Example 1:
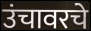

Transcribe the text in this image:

उंचावरचे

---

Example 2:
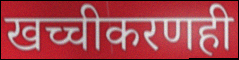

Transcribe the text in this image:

खच्चीकरणही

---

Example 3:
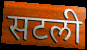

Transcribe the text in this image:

सटली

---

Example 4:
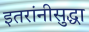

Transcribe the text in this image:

इतरांनीसुद्धा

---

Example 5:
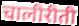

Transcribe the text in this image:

चालीरीती